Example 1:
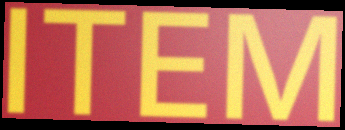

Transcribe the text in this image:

ITEM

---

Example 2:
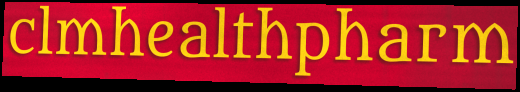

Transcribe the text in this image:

clmhealthpharm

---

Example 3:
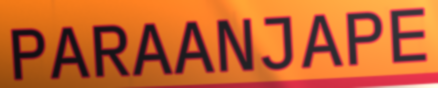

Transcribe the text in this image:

PARAANJAPE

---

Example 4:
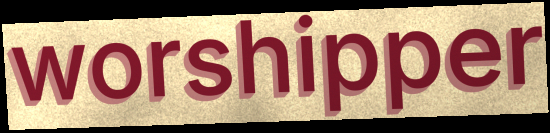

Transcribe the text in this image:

worshipper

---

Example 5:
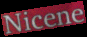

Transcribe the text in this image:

Nicene